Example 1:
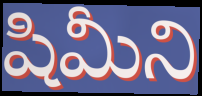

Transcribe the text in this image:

షిమీని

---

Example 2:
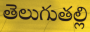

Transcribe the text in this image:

తెలుగుతల్లి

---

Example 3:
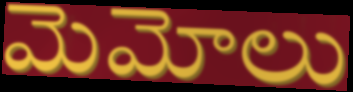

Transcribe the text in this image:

మెమోలు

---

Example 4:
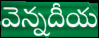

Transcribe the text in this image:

వెన్నదీయ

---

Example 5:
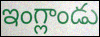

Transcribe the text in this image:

ఇంగ్లాండు